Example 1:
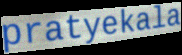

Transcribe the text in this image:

pratyekala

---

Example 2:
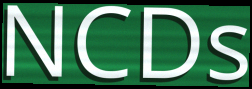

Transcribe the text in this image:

NCDs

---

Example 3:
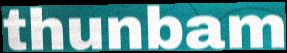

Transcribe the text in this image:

thunbam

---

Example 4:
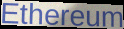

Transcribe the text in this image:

Ethereum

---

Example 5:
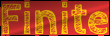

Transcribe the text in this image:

Finite